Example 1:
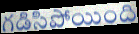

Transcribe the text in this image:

గడిసిపోయింది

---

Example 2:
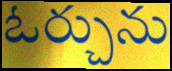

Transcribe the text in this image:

ఓర్చును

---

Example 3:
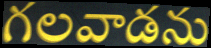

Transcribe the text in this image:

గలవాడను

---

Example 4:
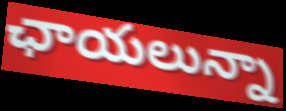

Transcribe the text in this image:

ఛాయలున్నా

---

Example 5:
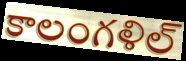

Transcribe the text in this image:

కాలంగళిల్